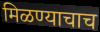
मिळण्याचाच